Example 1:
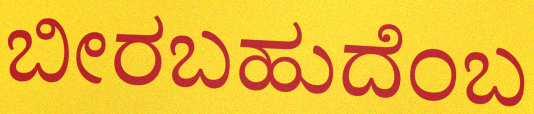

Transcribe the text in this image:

ಬೀರಬಹುದೆಂಬ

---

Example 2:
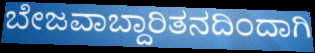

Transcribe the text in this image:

ಬೇಜವಾಬ್ದಾರಿತನದಿಂದಾಗಿ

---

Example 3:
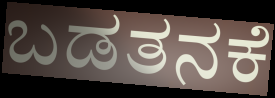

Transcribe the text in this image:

ಬಡತನಕೆ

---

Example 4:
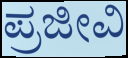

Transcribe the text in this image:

ಪ್ರಜೀವಿ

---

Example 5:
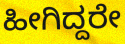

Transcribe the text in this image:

ಹೀಗಿದ್ದರೇ